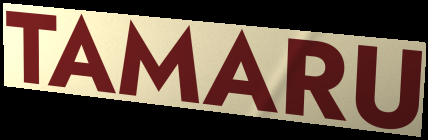
TAMARU